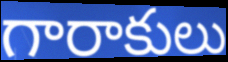
గారాకులు